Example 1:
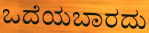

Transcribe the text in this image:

ಒದೆಯಬಾರದು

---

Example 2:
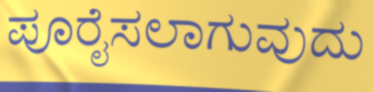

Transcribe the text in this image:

ಪೂರೈಸಲಾಗುವುದು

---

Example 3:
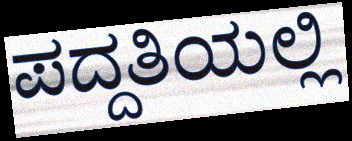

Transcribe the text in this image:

ಪದ್ದತಿಯಲ್ಲಿ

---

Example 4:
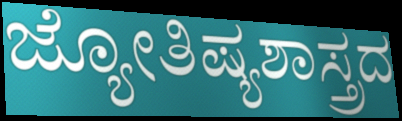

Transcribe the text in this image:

ಜ್ಯೋತಿಷ್ಯಶಾಸ್ತ್ರದ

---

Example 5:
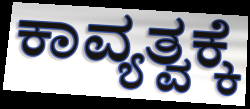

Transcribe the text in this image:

ಕಾವ್ಯತ್ವಕ್ಕೆ